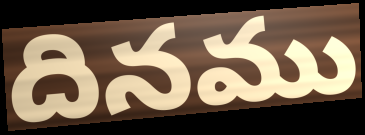
దినము